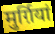
मुर्ग़ियां